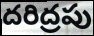
దరిద్రపు